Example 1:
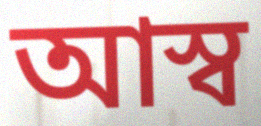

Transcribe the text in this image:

আস্ব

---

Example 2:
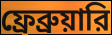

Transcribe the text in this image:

ফ্রেব্রুয়ারি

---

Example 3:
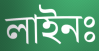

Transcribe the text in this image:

লাইনঃ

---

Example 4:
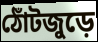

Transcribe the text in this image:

ঠোঁটজুড়ে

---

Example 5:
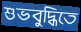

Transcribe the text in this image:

শুভবুদ্ধিতে